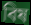
বিষ